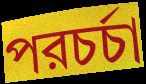
পরচর্চা